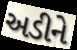
અડીને